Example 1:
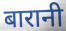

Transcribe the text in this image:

बारानी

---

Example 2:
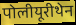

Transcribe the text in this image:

पोलीयूरीथेन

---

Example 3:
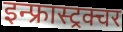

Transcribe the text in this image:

इन्फ्रास्ट्रक्चर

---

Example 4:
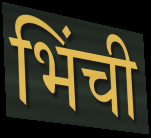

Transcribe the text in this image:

भिंची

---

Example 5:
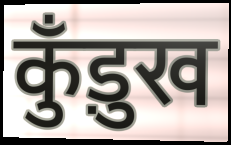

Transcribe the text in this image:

कुँड़ुख